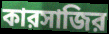
কারসাজির